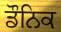
ਡੌਨਿਕ